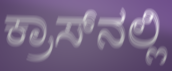
ಕ್ರಾಸ್‌ನಲ್ಲಿ